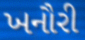
ખનૌરી